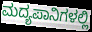
ಮದ್ಯಪಾನಿಗಳಲ್ಲಿ